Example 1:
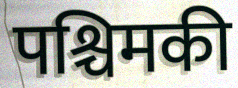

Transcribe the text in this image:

पश्चिमकी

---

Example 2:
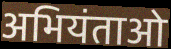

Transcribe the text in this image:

अभियंताओ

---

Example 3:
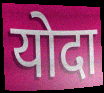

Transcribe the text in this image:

योदा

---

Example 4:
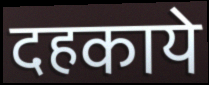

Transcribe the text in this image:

दहकाये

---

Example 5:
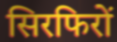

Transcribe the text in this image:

सिरफिरों